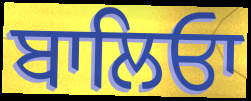
ਬਾਲਿਓਾ